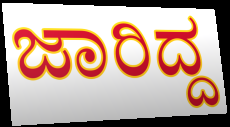
ಜಾರಿದ್ದ